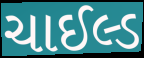
ચાઈલ્ડ